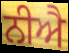
ਨੀਐ